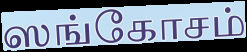
ஸங்கோசம்